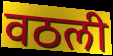
वठली